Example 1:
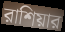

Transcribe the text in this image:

রাশিয়ার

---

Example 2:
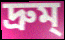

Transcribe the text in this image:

দ্রুম্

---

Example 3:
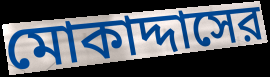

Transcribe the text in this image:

মোকাদ্দাসের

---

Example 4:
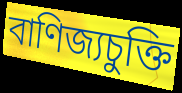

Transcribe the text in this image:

বাণিজ্যচুক্তি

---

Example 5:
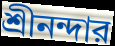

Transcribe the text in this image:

শ্রীনন্দার